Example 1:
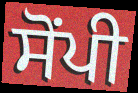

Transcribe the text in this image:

ਸੋੰਪੀ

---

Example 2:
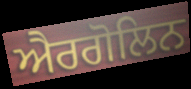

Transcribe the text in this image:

ਐਰਗੋਲਿਨ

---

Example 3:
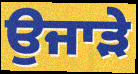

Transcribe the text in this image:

ਉਜਾੜੇ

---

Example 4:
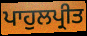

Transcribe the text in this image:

ਪਾਹੁਲਪ੍ਰੀਤ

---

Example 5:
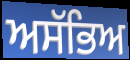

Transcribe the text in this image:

ਅਸੱਭਿਅ